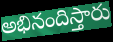
అభినందిస్తారు